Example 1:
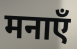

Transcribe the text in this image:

मनाएँ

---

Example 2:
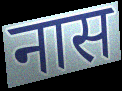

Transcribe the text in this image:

नास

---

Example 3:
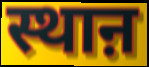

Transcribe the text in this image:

स्थाऩ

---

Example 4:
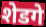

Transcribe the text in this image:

शेडगे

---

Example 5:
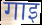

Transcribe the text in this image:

गाइ